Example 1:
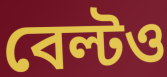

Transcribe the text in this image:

বেল্টও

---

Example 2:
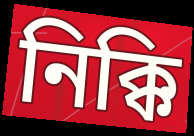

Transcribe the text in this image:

নিক্কি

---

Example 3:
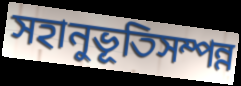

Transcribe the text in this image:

সহানুভূতিসম্পন্ন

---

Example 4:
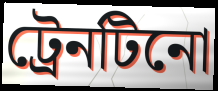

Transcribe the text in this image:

ট্রেনটিনো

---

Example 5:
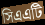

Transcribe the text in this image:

সিএএটি